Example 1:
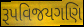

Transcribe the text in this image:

રૂપવિજયગણિ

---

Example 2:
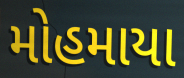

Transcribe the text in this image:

મોહમાયા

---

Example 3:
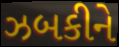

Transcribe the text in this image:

ઝબકીને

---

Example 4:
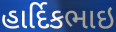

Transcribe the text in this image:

હાર્દિકભાઇ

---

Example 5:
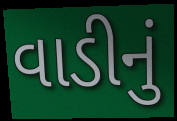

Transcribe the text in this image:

વાડીનું